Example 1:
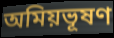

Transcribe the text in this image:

অমিয়ভূষণ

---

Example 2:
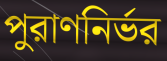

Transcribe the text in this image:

পুরাণনির্ভর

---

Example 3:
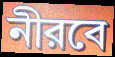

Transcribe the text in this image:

নীরবে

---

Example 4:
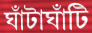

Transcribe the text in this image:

ঘাঁটাঘাঁটি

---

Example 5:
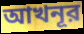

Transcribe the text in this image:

আখনূর